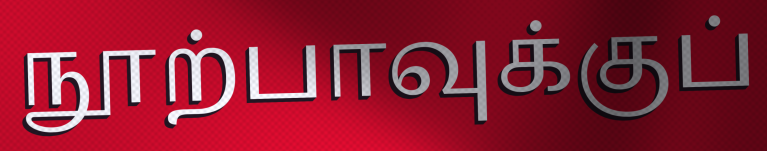
நூற்பாவுக்குப்